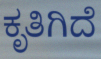
ಕೃತಿಗಿದೆ